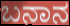
ಬನಾನ